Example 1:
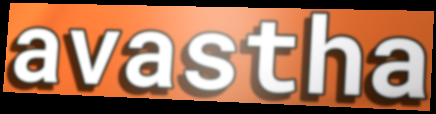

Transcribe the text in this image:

avastha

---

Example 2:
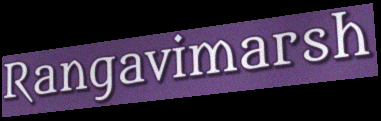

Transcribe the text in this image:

Rangavimarsh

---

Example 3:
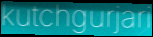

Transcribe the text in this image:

kutchgurjari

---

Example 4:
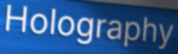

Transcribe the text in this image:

Holography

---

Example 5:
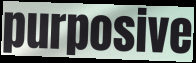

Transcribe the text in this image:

purposive